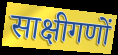
साक्षीगणों